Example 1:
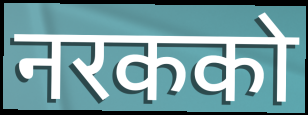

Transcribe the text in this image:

नरकको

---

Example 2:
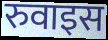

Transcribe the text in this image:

रुवाइस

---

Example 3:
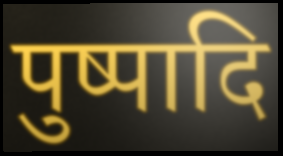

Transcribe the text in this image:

पुष्पादि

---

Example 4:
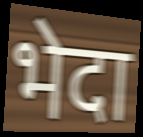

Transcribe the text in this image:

भेदा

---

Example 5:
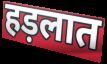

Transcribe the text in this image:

हड़लात